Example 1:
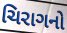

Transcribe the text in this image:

ચિરાગનો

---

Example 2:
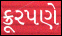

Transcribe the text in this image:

ક્રૂરપણે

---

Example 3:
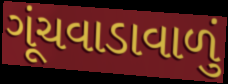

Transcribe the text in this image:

ગૂંચવાડાવાળું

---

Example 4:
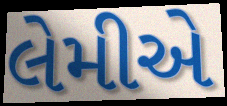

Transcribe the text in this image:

લેમીએ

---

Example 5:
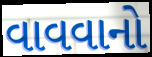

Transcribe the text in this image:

વાવવાનો